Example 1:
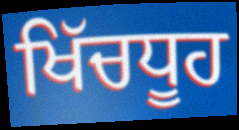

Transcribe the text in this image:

ਖਿੱਚਧੂਹ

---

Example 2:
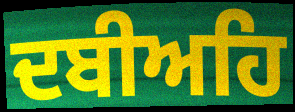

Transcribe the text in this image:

ਦਬੀਅਹਿ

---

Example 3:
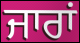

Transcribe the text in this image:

ਜਾਰਾਂ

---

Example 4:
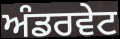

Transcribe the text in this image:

ਅੰਡਰਵੇਟ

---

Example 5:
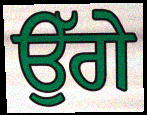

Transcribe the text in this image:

ਉੱਗੇ